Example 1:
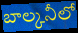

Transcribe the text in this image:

బాల్కనీలో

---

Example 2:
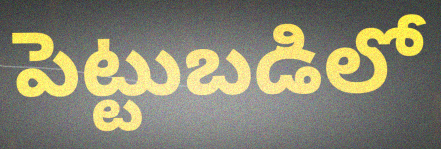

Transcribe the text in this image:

పెట్టుబడిలో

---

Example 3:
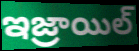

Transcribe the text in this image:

ఇజ్రాయిల్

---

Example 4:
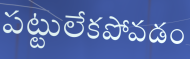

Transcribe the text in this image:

పట్టులేకపోవడం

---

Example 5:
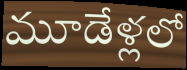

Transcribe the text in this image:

మూడేళ్లలో